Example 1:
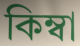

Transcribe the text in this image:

কিম্বা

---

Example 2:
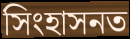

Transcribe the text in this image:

সিংহাসনত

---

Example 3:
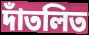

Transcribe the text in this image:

দাঁতলিত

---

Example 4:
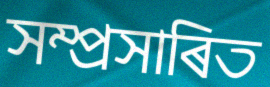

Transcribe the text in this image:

সম্প্ৰসাৰিত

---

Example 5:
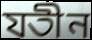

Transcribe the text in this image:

যতীন